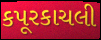
કપૂરકાચલી